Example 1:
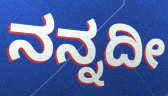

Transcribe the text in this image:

ನನ್ನದೀ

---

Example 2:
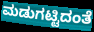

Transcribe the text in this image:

ಮಡುಗಟ್ಟಿದಂತೆ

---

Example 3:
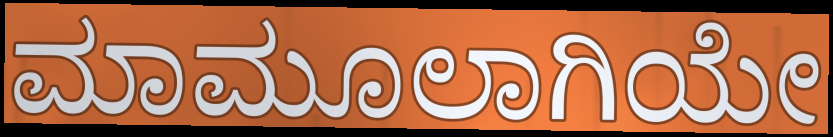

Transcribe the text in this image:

ಮಾಮೂಲಾಗಿಯೇ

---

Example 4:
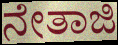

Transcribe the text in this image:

ನೇತಾಜಿ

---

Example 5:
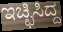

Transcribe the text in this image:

ಇಚ್ಛಿಸಿದ್ದ